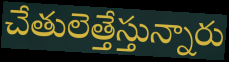
చేతులెత్తేస్తున్నారు